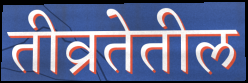
तीव्रतेतील